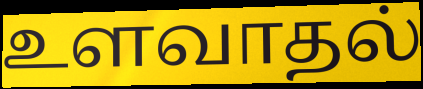
உளவாதல்